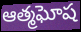
ఆత్మఘోష